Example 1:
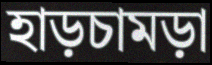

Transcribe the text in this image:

হাড়চামড়া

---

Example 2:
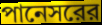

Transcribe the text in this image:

পানেসরের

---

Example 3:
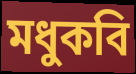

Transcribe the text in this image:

মধুকবি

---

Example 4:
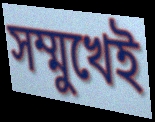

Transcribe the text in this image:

সম্মুখেই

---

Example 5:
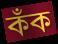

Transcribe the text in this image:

কঁক